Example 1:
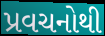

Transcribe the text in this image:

પ્રવચનોથી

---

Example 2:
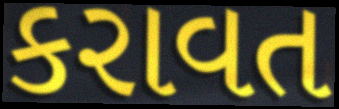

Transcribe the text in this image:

કરાવત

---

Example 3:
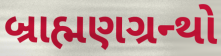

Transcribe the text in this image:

બ્રાહ્મણગ્રન્થો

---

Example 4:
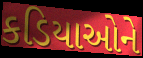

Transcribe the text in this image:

કડિયાઓને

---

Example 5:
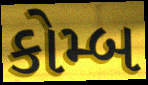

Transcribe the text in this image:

કોમ્બ